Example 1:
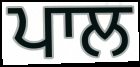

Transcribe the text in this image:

ਪਾਲ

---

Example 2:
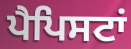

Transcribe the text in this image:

ਪੈਪਿਸਟਾਂ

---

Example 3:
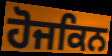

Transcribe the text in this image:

ਹੋਜਕਿਨ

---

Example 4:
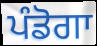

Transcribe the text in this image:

ਪੰਡੋਗਾ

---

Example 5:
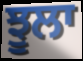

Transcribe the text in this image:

ਝੂਲਾ